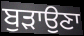
ਬੁੜਾਉਣਾ